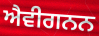
ਐਵੀਗਨਨ